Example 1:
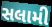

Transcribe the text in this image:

સલામી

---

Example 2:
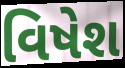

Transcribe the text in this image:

વિષેશ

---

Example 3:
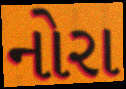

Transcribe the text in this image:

નોરા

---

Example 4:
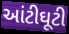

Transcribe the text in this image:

આંટીઘૂટી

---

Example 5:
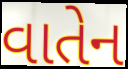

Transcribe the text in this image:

વાતેન